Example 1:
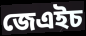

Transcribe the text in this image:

জেএইচ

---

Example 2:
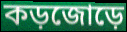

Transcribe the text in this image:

কড়জোড়ে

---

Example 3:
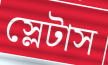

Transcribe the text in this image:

স্লেটাস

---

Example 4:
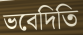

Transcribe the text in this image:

ভবেদিতি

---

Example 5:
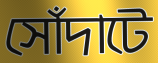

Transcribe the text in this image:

সোঁদাটে